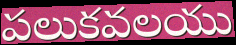
పలుకవలయు